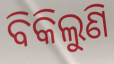
ବିକିଲୁଣି